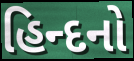
હિન્દનો